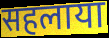
सहलाया